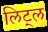
लिट्‌ल